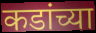
कडांच्या